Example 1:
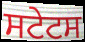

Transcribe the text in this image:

ਸਟੇਟਸ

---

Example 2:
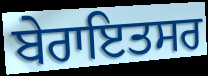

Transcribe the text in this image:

ਬੇਰਾਇਤਸਰ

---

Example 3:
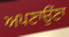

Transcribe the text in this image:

ਅਪਣਾਉਂਣਾ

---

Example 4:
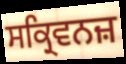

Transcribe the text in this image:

ਸਕ੍ਰਿਵਨਜ਼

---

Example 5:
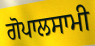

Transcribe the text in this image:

ਗੋਪਾਲਸਾਮੀ